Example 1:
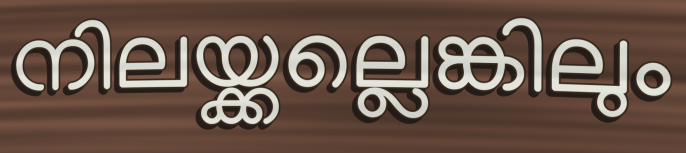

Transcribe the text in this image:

നിലയ്ക്കല്ലെങ്കിലും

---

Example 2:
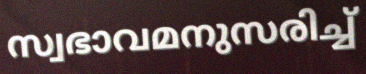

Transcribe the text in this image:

സ്വഭാവമനുസരിച്ച്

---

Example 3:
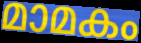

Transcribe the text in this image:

മാമകം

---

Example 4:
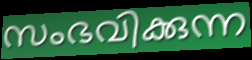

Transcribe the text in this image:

സംഭവിക്കുന്ന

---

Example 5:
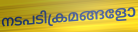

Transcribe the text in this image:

നടപടിക്രമങ്ങളോ